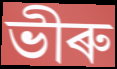
ভীৰু